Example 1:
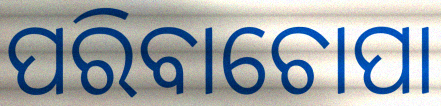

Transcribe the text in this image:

ପରିବାଚୋପା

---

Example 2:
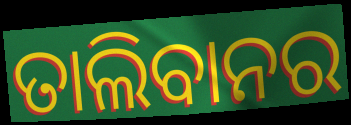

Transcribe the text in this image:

ତାଲିବାନର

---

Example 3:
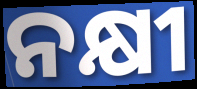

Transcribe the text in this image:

ନକ୍ଷୀ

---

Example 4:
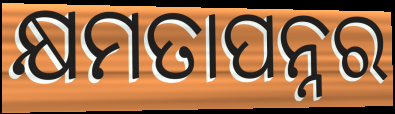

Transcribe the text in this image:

କ୍ଷମତାପନ୍ନର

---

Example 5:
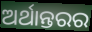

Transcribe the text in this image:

ଅର୍ଥାନ୍ତରର